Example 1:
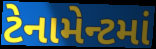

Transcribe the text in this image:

ટેનામેન્ટમાં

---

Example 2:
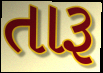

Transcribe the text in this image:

તારૂ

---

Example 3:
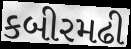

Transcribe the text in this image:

કબીરમઢી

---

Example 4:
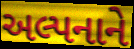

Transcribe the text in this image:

અલ્પનાને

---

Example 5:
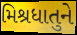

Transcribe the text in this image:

મિશ્રધાતુને